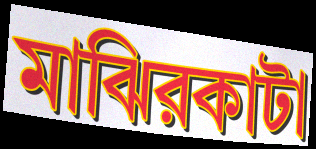
মাঝিরকাটা